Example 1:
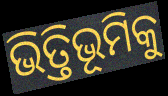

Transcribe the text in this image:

ଭିତ୍ତିଭୂମିକୁ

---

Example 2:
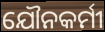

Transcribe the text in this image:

ଯୌନକର୍ମୀ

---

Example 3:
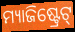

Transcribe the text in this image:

ମ୍ୟାଜିଷ୍ଟ୍ରେଟ୍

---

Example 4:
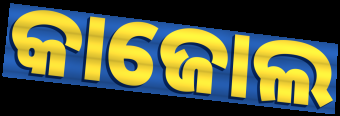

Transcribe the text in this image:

କାଜୋଲ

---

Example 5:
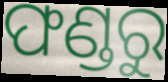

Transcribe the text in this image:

ଫଣ୍ଡରୁ